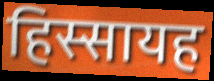
हिस्सायह